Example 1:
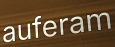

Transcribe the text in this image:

auferam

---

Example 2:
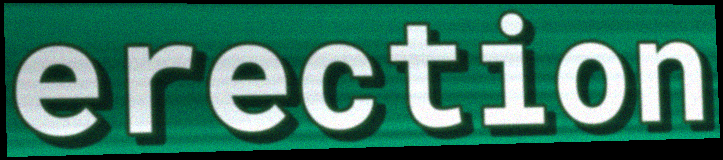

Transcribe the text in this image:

erection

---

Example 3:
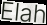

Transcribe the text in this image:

Elah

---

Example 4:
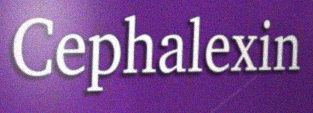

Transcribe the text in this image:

Cephalexin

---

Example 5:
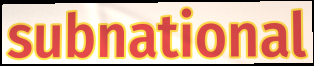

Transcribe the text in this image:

subnational